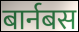
बार्नबस